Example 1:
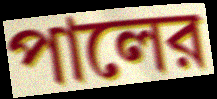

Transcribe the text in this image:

পালের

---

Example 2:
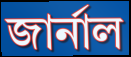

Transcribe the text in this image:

জার্নাল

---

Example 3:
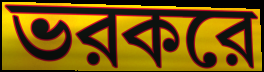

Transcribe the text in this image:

ভরকরে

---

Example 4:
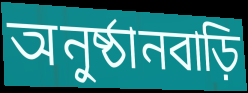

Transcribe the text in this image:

অনুষ্ঠানবাড়ি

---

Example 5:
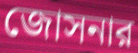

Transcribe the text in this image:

জোসনার